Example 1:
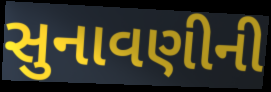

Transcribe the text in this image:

સુનાવણીની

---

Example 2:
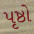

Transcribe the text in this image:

પૃષ્ઠો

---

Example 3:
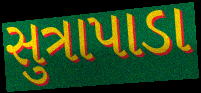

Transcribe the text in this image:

સુત્રાપાડા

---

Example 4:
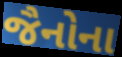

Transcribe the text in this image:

જૈનોના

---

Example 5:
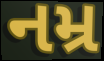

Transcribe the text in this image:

નમ્ર